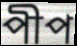
পীপ